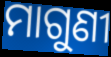
ମାଗୁଣୀ